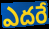
ఎదరే